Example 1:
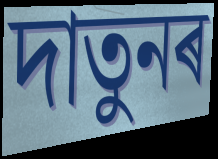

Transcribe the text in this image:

দাতুনৰ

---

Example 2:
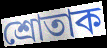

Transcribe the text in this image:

শ্ৰোতাক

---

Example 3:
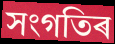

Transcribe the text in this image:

সংগতিৰ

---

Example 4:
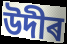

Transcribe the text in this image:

উদীৰ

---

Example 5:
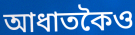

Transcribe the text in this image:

আধাতকৈও